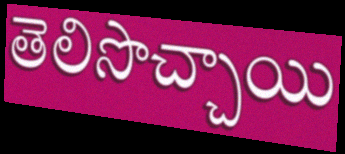
తెలిసొచ్చాయి